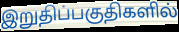
இறுதிப்பகுதிகளில்